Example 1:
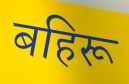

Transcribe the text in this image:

बहिरू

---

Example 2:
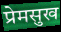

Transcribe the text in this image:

प्रेमसुख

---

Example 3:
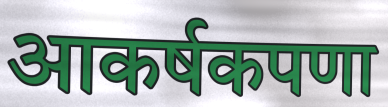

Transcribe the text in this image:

आकर्षकपणा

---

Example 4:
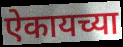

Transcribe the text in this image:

ऐकायच्या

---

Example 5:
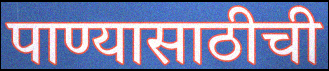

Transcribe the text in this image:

पाण्यासाठीची